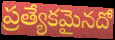
ప్రత్యేకమైనదో